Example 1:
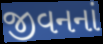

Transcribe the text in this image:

જીવનનાં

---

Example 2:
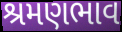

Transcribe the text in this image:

શ્રમણભાવ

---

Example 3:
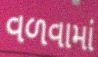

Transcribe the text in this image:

વળવામાં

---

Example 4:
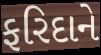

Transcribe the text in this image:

ફરિદાને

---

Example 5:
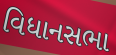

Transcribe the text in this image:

વિધાનસભા